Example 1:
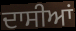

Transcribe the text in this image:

ਦਾਸੀਆਂ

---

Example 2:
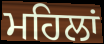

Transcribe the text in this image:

ਮਹਿਲਾਂ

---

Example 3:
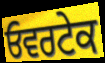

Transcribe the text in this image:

ਓਵਰਟੇਕ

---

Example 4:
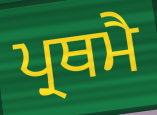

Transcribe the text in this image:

ਪ੍ਰਥਮੈ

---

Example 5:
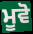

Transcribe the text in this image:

ਮੂਵੋ